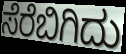
ಸೆರೆಬಿಗಿದು